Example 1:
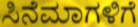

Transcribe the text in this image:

ಸಿನೆಮಾಗಳಿಗೆ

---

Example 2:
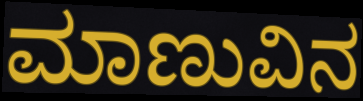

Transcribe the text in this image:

ಮಾಣುವಿನ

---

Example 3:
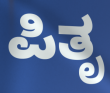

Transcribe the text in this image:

ಪಿತೃ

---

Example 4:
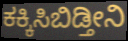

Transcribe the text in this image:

ಕಕ್ಕಿಸಿಬಿಡ್ತೀನಿ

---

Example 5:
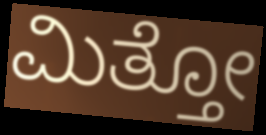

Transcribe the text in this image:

ಮಿತ್ತೋ